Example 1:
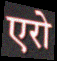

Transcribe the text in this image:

एरो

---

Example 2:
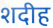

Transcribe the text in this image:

शदीह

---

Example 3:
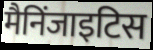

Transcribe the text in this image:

मैनिंजाइटिस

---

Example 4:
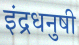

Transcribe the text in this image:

इंद्रधनुषी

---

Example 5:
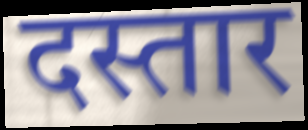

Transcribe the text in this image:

दस्तार